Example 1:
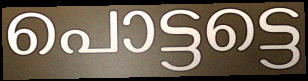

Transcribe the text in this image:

പൊട്ടട്ടെ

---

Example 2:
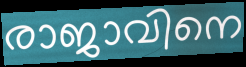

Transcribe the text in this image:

രാജാവിനെ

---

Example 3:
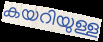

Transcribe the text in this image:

കയറിയുള്ള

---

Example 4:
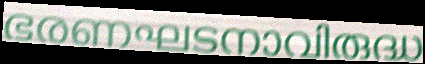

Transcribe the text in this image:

ഭരണഘടനാവിരുദ്ധ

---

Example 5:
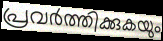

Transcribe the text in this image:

പ്രവർത്തിക്കുകയും